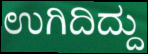
ಉಗಿದಿದ್ದು